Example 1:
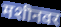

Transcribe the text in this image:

मशीनवर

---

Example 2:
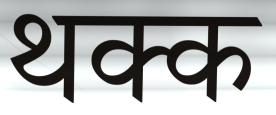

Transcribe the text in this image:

थक्क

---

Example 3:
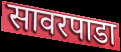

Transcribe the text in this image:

सावरपाडा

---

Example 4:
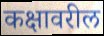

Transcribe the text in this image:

कक्षावरील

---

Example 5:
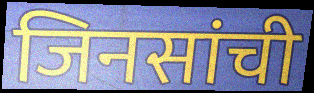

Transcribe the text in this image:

जिनसांची